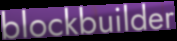
blockbuilder